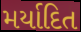
મર્યાદિત